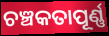
ଚଞ୍ଚକତାପୂର୍ଣ୍ଣ